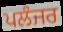
ਪਲੰਜਰ